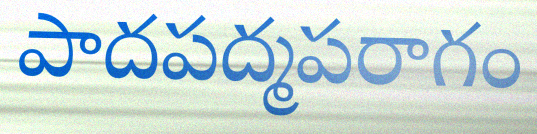
పాదపద్మపరాగం